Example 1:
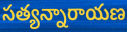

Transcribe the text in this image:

సత్యన్నారాయణ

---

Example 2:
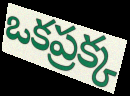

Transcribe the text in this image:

ఒకప్రక్క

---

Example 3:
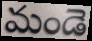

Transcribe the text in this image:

మండె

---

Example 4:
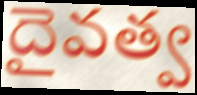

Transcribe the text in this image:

దైవత్వ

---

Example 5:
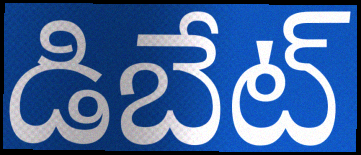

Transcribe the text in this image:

డిబేట్